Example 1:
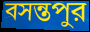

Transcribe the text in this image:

বসন্তপুর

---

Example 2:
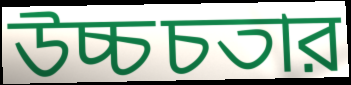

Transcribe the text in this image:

উচ্চচতার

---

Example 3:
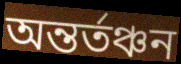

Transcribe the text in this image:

অন্তর্তঞ্চন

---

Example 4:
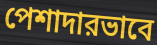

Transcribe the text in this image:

পেশাদারভাবে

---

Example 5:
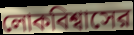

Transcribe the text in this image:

লোকবিশ্বাসের